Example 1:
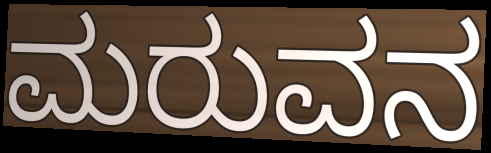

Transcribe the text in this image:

ಮರುವನ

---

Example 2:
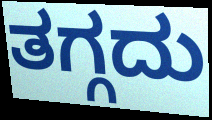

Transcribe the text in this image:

ತಗ್ಗದು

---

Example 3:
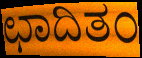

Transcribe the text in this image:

ಛಾದಿತಂ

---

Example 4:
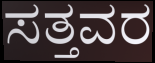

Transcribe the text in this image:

ಸತ್ತವರ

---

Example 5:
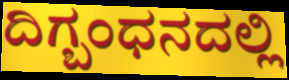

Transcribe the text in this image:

ದಿಗ್ಬಂಧನದಲ್ಲಿ